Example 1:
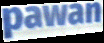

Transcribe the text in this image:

pawan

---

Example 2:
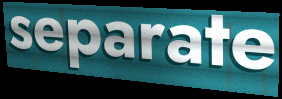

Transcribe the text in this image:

separate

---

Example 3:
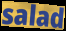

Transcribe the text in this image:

salad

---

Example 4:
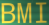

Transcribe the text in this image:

BMI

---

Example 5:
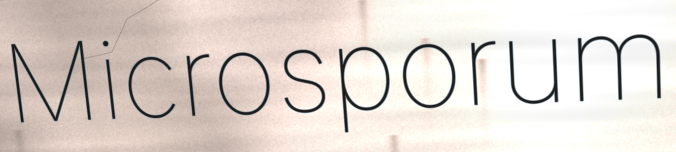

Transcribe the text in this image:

Microsporum